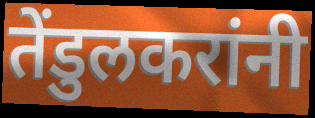
तेंडुलकरांनी